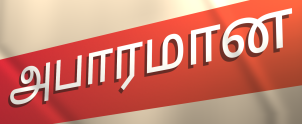
அபாரமான